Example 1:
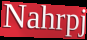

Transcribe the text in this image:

Nahrpj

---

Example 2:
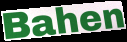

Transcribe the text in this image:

Bahen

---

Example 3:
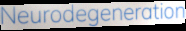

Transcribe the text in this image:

Neurodegeneration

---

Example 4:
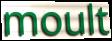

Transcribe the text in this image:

moult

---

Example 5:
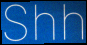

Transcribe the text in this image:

Shh